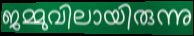
ജമ്മുവിലായിരുന്നു